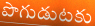
పొగుడుటకు